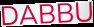
DABBU